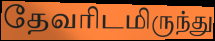
தேவரிடமிருந்து